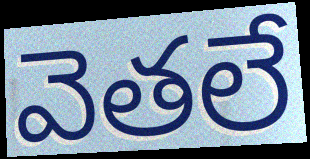
వెతలే